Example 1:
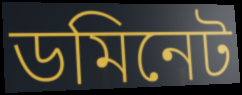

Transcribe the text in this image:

ডমিনেট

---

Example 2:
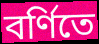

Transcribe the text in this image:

বর্ণিতে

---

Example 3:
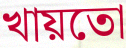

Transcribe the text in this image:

খায়তো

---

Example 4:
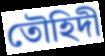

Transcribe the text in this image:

তৌহিদী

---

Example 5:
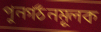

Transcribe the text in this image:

পুনর্গঠনমূলক